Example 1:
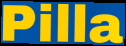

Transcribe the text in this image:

Pilla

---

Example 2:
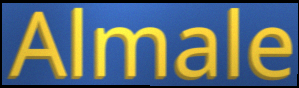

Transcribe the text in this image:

Almale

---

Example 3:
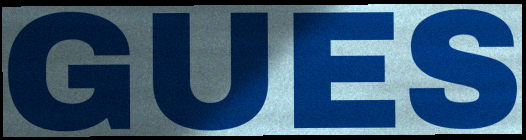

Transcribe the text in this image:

GUES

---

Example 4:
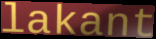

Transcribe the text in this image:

lakant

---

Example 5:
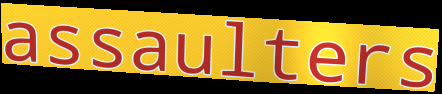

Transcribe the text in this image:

assaulters